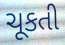
ચૂકતી